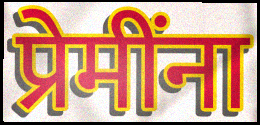
प्रेमींना